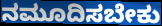
ನಮೂದಿಸಬೇಕು